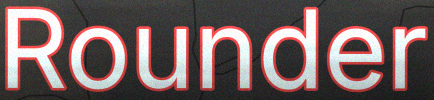
Rounder